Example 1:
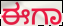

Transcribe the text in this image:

ಈಗಾ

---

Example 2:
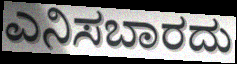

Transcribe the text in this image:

ಎನಿಸಬಾರದು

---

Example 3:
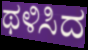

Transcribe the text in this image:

ಥಳಿಸಿದ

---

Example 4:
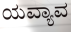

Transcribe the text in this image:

ಯವ್ಯಾವ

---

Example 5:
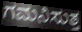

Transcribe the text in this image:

ಗಮನಿಸುತ್ತ